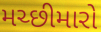
મચ્છીમારો